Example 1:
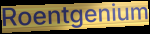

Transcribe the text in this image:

Roentgenium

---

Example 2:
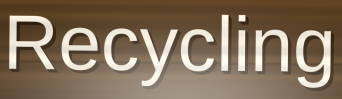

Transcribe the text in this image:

Recycling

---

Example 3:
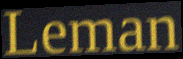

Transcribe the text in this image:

Leman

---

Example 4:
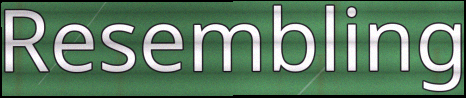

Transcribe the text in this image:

Resembling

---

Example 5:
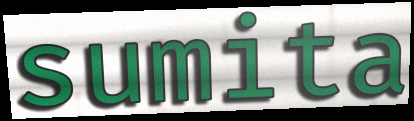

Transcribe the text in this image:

sumita